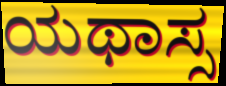
ಯಥಾಸ್ಸ